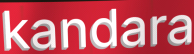
kandara